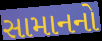
સામાનનો